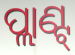
ପ୍ଲାଣ୍ଟ୍